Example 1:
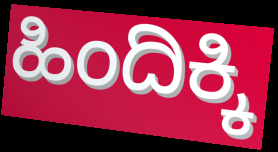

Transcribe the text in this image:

ಹಿಂದಿಕ್ಕಿ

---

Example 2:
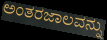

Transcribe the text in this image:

ಅಂತರಜಾಲವನ್ನು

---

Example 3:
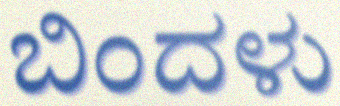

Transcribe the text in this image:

ಬಿಂದಳು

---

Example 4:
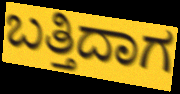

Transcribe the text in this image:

ಬತ್ತಿದಾಗ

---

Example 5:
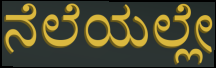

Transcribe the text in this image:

ನೆಲೆಯಲ್ಲೇ